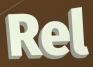
Rel